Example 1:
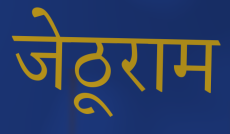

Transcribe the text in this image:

जेठूराम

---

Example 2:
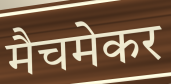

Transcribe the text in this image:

मैचमेकर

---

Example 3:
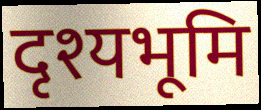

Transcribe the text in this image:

दृश्यभूमि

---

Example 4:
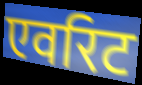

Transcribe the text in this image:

एवरिट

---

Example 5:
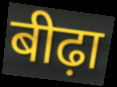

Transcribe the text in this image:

बीढ़ा